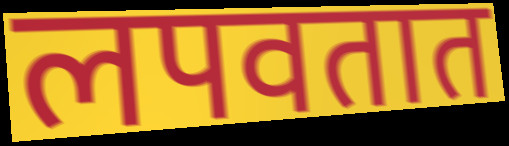
लपवतात